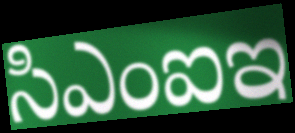
సిఎంఐఇ